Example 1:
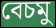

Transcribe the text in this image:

বেচমু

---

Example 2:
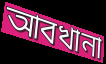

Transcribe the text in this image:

আবখানা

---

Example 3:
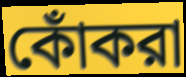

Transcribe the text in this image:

কোঁকরা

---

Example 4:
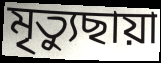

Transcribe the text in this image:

মৃত্যুছায়া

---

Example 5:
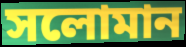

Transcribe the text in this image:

সলোমান